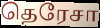
தெரேசா